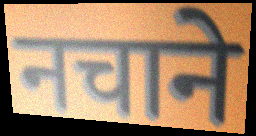
नचाने